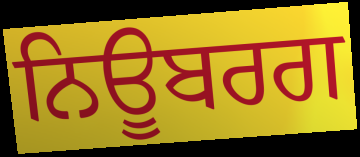
ਨਿਊਬਰਗ